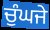
ਚੁੰਘਜੇ